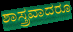
ಶಾಸ್ತ್ರವಾದರೂ